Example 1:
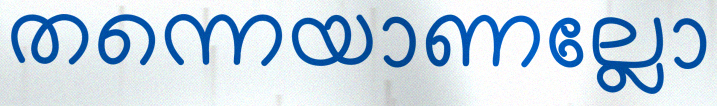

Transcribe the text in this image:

തന്നെയാണല്ലോ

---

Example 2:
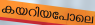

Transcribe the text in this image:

കയറിയപോലെ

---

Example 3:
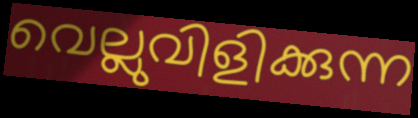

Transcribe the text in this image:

വെല്ലുവിളിക്കുന്ന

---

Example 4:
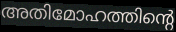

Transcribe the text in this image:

അതിമോഹത്തിന്റെ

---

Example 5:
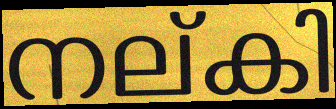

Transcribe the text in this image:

നല്‌കി